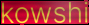
kowshi